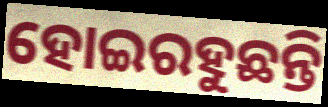
ହୋଇରହୁଛନ୍ତି